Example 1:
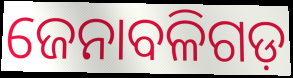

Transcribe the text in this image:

ଜେନାବଳିଗଡ଼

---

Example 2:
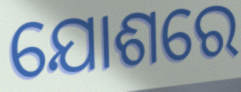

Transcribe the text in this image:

ଯୋଶରେ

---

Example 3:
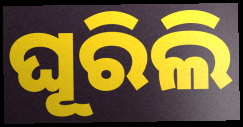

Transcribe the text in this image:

ଘୂରିଲି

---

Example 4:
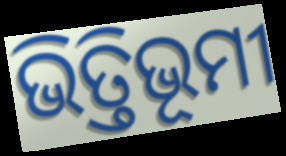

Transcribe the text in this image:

ଭିତ୍ତିଭୂମୀ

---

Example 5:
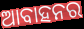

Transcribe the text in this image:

ଆବାହନର